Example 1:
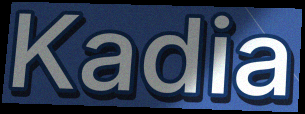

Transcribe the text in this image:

Kadia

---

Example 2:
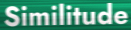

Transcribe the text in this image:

Similitude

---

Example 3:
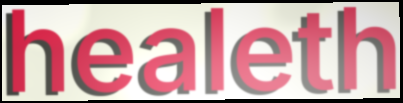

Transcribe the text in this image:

healeth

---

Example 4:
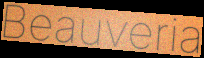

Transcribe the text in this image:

Beauveria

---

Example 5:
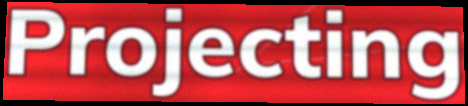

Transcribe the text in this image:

Projecting